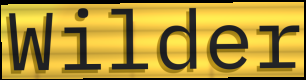
Wilder